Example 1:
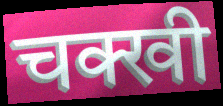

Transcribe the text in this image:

चक्खी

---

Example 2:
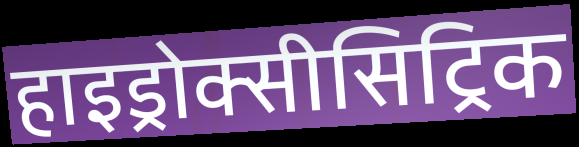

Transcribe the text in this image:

हाइड्रोक्सीसिट्रिक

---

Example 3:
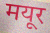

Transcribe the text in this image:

मयूर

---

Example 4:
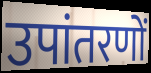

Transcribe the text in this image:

उपांतरणों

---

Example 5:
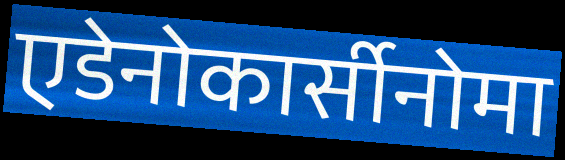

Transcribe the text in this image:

एडेनोकार्सीनोमा